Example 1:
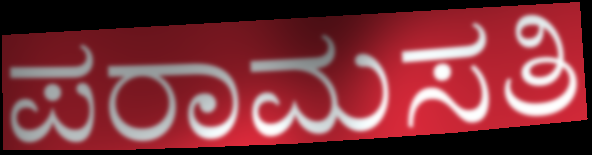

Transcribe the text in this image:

ಪರಾಮಸತಿ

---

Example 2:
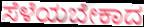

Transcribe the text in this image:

ಸೆಳೆಯಬೇಕಾದ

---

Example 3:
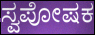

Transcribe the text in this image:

ಸ್ವಪೋಷಕ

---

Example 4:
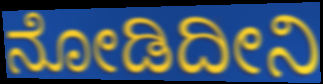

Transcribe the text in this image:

ನೋಡಿದೀನಿ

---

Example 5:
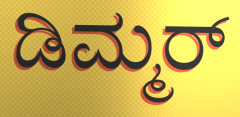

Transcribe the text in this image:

ಡಿಮ್ಮರ್